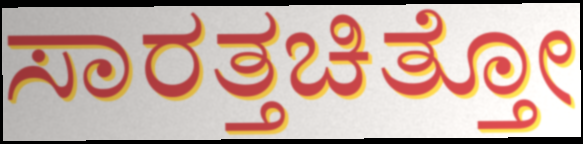
ಸಾರತ್ತಚಿತ್ತೋ